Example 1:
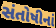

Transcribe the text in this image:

સંતોષીનાં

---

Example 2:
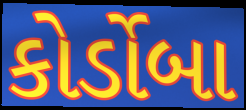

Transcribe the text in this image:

કોર્ડોબા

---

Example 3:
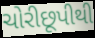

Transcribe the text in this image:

ચોરીછૂપીથી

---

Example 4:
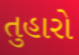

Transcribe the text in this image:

તુહારો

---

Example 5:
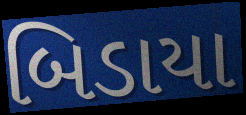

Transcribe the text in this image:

બિડાયા